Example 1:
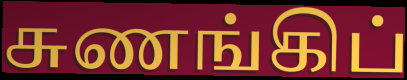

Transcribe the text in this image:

சுணங்கிப்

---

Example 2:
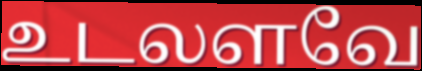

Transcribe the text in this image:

உடலளவே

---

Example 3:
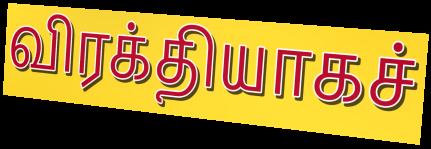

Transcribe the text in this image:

விரக்தியாகச்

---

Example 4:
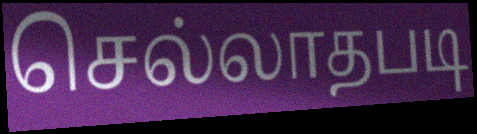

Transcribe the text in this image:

செல்லாதபடி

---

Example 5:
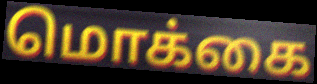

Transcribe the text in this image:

மொக்கை